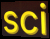
sci